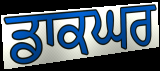
ਡਾਕਘਰ